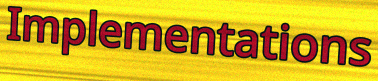
Implementations